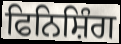
ਫਿਨਿਸ਼ਿੰਗ